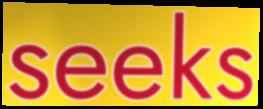
seeks